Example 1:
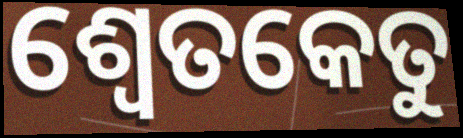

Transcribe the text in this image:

ଶ୍ୱେତକେତୁ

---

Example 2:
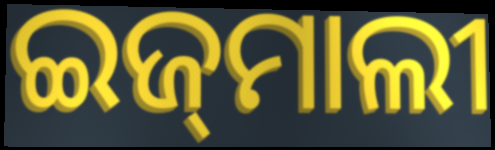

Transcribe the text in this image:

ଇଜ୍‌ମାଲୀ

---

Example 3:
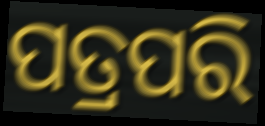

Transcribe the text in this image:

ପତ୍ରପରି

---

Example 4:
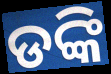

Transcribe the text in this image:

ଡଙ୍କି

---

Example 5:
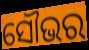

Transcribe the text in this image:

ସୌଭର